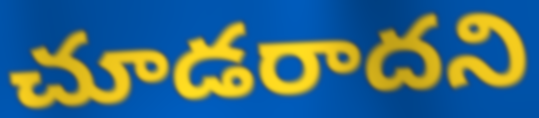
చూడరాదని